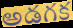
అడగక